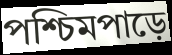
পশ্চিমপাড়ে